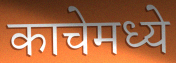
काचेमध्ये